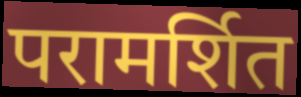
परामर्शित